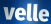
velle